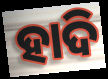
ହାଦି